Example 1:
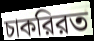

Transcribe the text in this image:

চাকরিরত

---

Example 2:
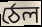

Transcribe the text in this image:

ঠেল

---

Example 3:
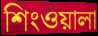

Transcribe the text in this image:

শিংওয়ালা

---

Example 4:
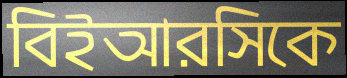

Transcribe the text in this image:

বিইআরসিকে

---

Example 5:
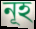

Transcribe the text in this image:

নূহ